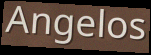
Angelos